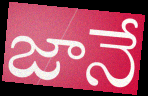
జానే